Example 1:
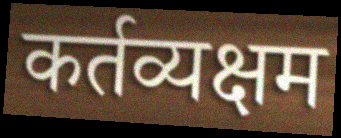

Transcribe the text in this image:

कर्तव्यक्षम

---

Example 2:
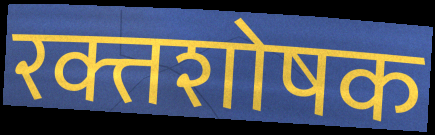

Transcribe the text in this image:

रक्तशोषक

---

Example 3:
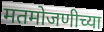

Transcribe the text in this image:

मतमोजणीच्या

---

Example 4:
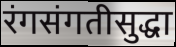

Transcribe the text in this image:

रंगसंगतीसुद्धा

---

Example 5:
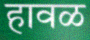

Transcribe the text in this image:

हावळ